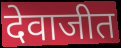
देवाजीत